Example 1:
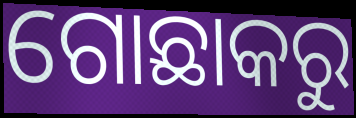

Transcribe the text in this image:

ଗୋଛାକରୁ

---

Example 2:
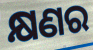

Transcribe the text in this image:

କ୍ଷଣର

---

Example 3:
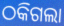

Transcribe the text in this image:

ଠକିଗଲା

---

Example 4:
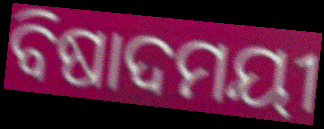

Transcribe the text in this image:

ବିଷାଦମୟୀ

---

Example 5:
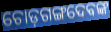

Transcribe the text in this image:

ଚୋଡ଼ଗଙ୍ଗଦେବଙ୍କ